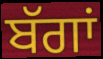
ਬੱਗਾਂ